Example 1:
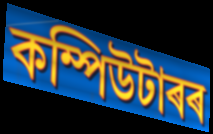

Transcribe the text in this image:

কম্পিউটাৰৰ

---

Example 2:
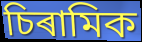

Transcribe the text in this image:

চিৰামিক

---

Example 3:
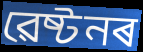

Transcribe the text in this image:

ৱেষ্টনৰ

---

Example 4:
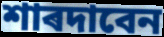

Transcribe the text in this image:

শাৰদাবেন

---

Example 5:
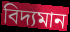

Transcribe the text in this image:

বিদ্যমান